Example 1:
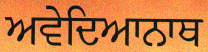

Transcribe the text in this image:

ਅਵੇਦਿਆਨਾਥ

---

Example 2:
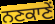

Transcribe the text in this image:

ਨਣਕਾਣੇਂ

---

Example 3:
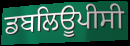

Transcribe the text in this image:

ਡਬਲਿਊਪੀਸੀ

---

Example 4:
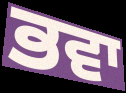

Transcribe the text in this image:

ਭਵਾ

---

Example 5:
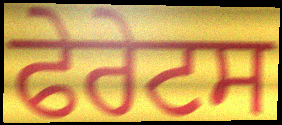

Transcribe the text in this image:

ਫੇਰੇਟਸ